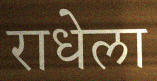
राधेला